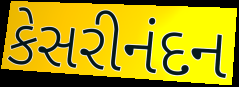
કેસરીનંદન